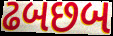
ઢબછબ